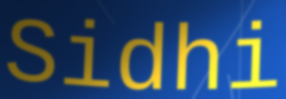
Sidhi